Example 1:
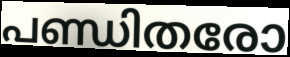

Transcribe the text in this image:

പണ്ഡിതരോ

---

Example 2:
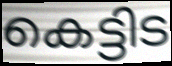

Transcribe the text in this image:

കെട്ടിട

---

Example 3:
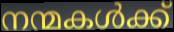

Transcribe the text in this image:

നന്മകൾക്ക്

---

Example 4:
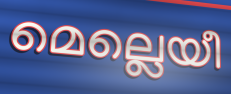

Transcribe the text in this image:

മെല്ലെയീ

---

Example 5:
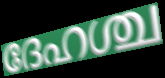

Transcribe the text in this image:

ദേഹശ്ച